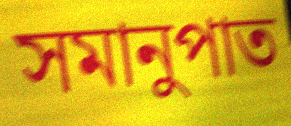
সমানুপাত